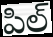
పిల్